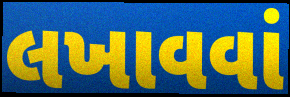
લખાવવાં